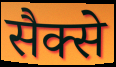
सैक्से